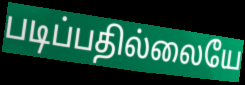
படிப்பதில்லையே